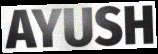
AYUSH